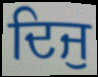
ਦਿਜੁ